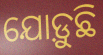
ଯୋଡ଼ୁଛି